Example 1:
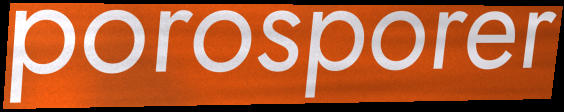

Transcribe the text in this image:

porosporer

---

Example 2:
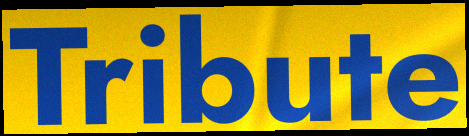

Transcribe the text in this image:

Tribute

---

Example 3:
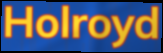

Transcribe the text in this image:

Holroyd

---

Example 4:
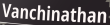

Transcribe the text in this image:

Vanchinathan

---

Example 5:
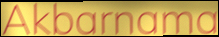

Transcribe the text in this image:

Akbarnama